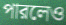
পারলেও